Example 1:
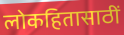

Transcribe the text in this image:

लोकहितासाठीं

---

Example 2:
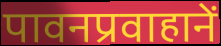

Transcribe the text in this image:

पावनप्रवाहानें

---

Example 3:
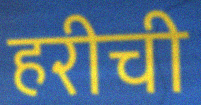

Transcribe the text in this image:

हरीची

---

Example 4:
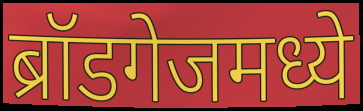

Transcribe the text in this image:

ब्रॉडगेजमध्ये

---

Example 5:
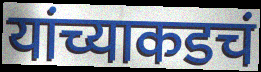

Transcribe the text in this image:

यांच्याकडचं